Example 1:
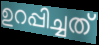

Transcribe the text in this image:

ഉറപ്പിച്ചത്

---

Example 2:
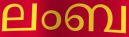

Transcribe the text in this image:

ലംബ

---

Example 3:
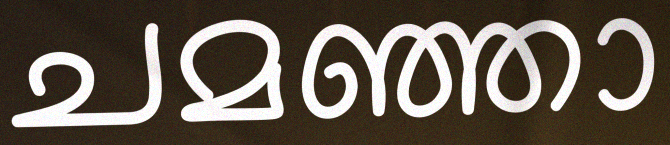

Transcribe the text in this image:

ചമഞ്ഞാ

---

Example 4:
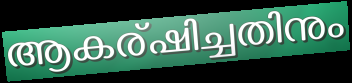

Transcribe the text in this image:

ആകര്ഷിച്ചതിനും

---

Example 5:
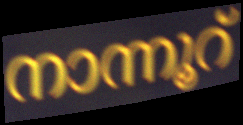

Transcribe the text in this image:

നാന്നൂറ്